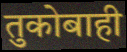
तुकोबाही